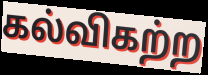
கல்விகற்ற